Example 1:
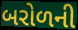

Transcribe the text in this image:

બરોળની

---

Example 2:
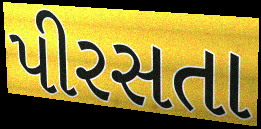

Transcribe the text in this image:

પીરસતા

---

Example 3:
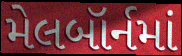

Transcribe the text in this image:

મેલબૉર્નમાં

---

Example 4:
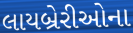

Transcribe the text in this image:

લાયબ્રેરીઓના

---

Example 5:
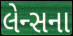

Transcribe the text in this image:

લેન્સના